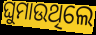
ଘୁମାଉଥିଲେ